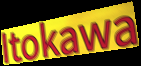
Itokawa